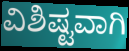
ವಿಶಿಷ್ಟವಾಗಿ